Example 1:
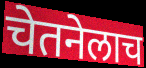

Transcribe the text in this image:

चेतनेलाच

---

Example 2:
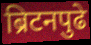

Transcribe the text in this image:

ब्रिटनपुढे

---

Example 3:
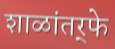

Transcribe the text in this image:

शाळांतर्फे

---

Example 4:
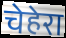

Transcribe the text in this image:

चेहेरा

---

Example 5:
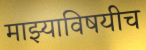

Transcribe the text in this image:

माझ्याविषयीच